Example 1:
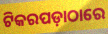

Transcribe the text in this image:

ଟିକରପଡ଼ାଠାରେ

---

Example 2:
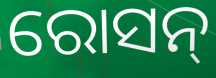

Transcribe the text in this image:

ରୋସନ୍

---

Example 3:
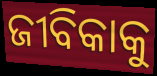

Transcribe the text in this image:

ଜୀବିକାକୁ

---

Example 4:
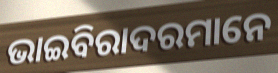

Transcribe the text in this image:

ଭାଇବିରାଦରମାନେ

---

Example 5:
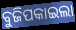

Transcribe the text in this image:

ବୁଜିପକାଇଲା